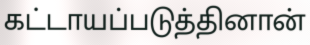
கட்டாயப்படுத்தினான்